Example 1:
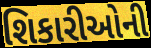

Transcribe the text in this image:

શિકારીઓની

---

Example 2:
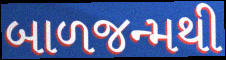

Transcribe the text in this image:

બાળજન્મથી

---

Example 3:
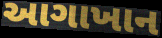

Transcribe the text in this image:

આગાખાન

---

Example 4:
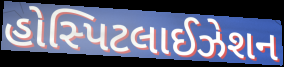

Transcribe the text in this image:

હોસ્પિટલાઈઝેશન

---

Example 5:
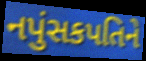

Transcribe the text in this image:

નપુંસકપતિને